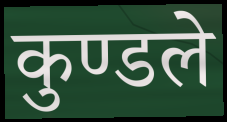
कुण्डले